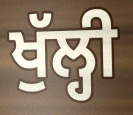
ਖੁੱਲ੍ਹੀ